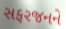
સફરજનને